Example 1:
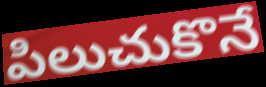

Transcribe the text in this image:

పిలుచుకొనే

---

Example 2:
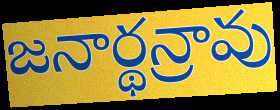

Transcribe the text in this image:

జనార్థన్రావు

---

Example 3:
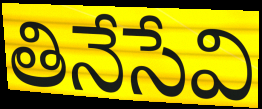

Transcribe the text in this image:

తినేసేవి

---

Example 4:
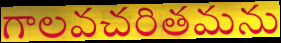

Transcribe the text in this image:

గాలవచరితమను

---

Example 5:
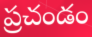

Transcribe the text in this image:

ప్రచండం